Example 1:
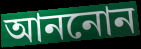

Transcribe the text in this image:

আননোন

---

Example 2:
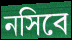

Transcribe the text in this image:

নসিবে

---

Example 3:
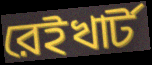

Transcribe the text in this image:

রেইখার্ট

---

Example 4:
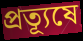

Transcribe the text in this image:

প্রত্যূষে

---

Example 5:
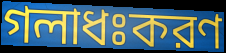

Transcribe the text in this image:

গলাধঃকরণ